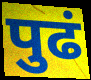
पुढं